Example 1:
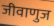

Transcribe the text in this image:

जीवाणुज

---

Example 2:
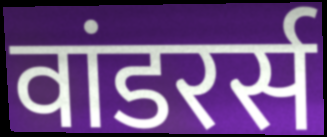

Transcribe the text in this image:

वांडरर्स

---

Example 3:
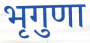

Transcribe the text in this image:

भृगुणा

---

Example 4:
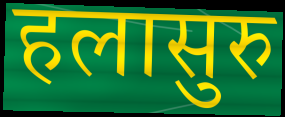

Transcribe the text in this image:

हलासुरु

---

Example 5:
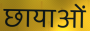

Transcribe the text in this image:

छायाओं